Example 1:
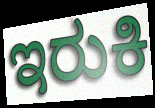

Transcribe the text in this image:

ಇರುಕಿ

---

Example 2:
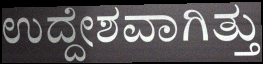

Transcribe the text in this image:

ಉದ್ದೇಶವಾಗಿತ್ತು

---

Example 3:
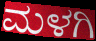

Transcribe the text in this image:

ಮಳಗಿ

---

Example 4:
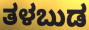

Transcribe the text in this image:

ತಳಬುಡ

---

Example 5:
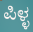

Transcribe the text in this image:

ಪಿಳ್ಳ